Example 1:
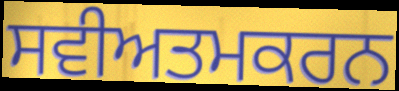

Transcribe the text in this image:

ਸਵੀਅਤਮਕਰਨ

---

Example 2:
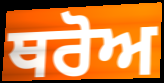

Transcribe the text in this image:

ਥਰੋਅ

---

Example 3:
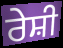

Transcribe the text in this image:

ਰੇਸ਼ੀ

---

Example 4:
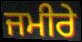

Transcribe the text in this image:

ਜਮੀਰੇ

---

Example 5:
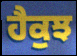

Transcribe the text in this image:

ਹੈਕੁਝ